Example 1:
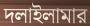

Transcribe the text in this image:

দলাইলামার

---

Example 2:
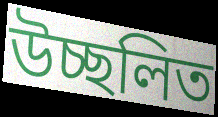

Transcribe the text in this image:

উচ্ছলিত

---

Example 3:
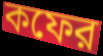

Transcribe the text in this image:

কফের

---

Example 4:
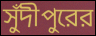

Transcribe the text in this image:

সুঁদীপুরের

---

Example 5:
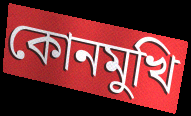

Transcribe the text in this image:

কোনমুখি